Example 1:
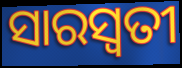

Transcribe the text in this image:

ସାରସ୍ୱତୀ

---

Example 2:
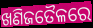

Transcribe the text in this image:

ଖଣିଜତୈଳରେ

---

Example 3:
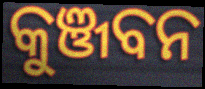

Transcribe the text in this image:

କୁଞ୍ଜବନ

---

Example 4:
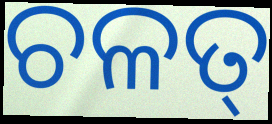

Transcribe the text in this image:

ଚଳତ୍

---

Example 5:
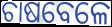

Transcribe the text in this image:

ଚାଷବେଳେ